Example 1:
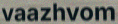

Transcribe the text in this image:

vaazhvom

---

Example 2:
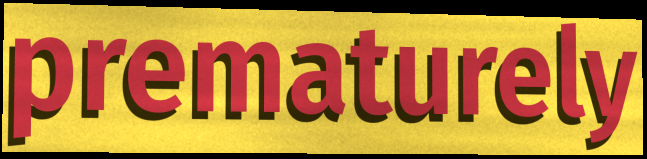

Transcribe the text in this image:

prematurely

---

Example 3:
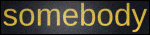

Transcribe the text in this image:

somebody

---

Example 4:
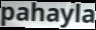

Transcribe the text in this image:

pahayla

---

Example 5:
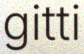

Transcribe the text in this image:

gitti